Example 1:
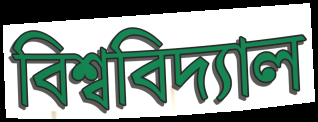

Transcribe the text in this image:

বিশ্ববিদ্যাল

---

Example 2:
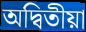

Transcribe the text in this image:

অদ্বিতীয়া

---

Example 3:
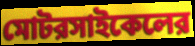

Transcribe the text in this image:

মোটরসাইকেলের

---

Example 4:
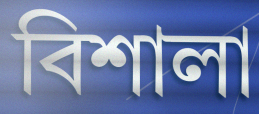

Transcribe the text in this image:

বিশালা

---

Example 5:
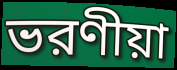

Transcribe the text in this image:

ভরণীয়া